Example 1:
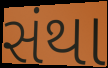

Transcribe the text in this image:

સંથા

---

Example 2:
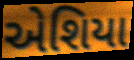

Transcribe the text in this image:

એશિયા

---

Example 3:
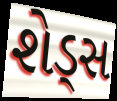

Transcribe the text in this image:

શેડ્સ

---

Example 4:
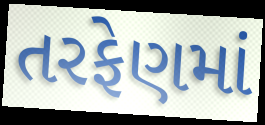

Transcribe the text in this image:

તરફેણમાં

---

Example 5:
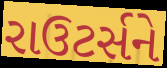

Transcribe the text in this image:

રાઉટર્સને